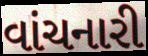
વાંચનારી